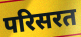
परिसरत